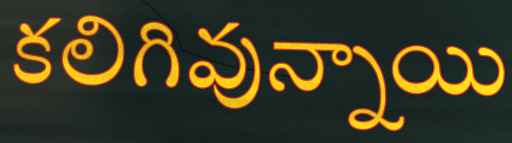
కలిగివున్నాయి